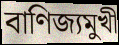
বাণিজ্যমুখী